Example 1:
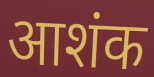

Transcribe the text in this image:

आशंक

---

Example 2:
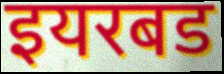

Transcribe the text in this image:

इयरबड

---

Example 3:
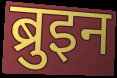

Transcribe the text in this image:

ब्रुइन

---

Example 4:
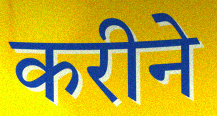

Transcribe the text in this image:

करीने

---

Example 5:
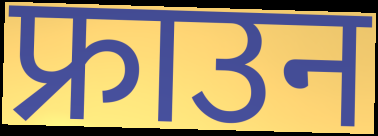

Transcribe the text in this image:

फ्राउन